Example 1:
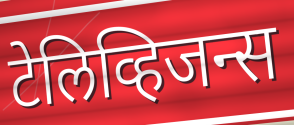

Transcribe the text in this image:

टेलिव्हिजन्स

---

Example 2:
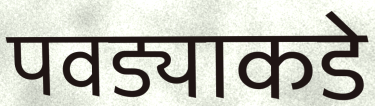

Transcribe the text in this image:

पवड्याकडे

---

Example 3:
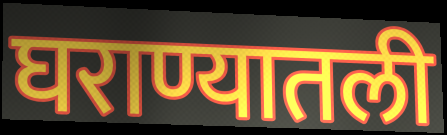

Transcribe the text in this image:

घराण्यातली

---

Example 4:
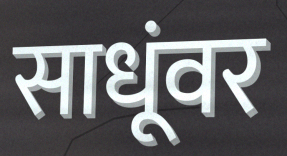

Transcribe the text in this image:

साधूंवर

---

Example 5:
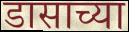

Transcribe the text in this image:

डासाच्या